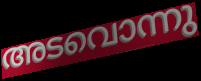
അടവൊന്നു